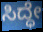
ಸಿದ್ಧೇ